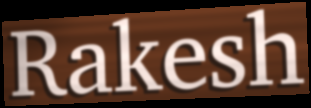
Rakesh